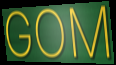
GOM